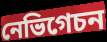
নেভিগেচন